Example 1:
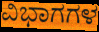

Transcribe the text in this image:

ವಿಭಾಗಗಳ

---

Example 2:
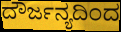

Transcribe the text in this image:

ದೌರ್ಜನ್ಯದಿಂದ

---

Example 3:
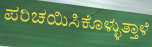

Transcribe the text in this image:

ಪರಿಚಯಿಸಿಕೊಳ್ಳುತ್ತಾಳೆ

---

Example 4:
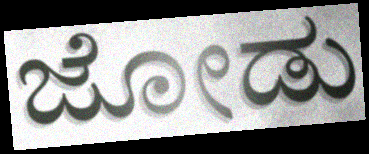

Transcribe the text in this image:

ಜೋಡು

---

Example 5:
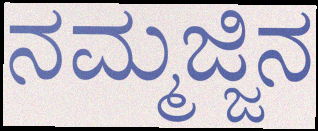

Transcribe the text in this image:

ನಮ್ಮಜ್ಜಿನ